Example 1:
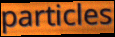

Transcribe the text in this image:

particles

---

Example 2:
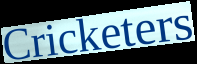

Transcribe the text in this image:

Cricketers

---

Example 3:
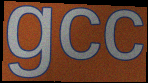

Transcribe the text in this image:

gcc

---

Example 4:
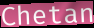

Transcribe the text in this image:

Chetan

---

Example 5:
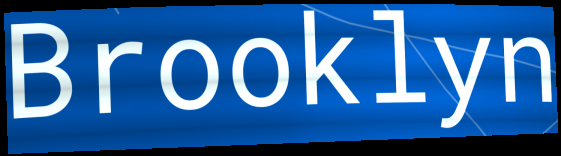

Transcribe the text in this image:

Brooklyn